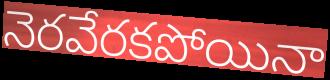
నెరవేరకపోయినా